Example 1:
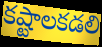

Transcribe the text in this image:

కష్టాలకడలి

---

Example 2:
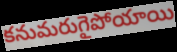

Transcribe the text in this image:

కనుమరుగైపోయాయి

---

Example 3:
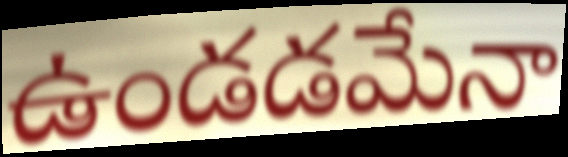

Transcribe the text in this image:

ఉండడమేనా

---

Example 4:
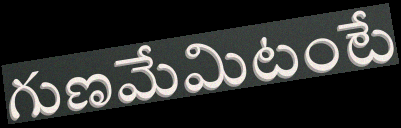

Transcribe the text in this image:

గుణమేమిటంటే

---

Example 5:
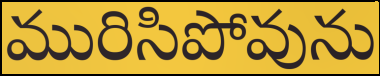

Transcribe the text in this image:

మురిసిపోవును